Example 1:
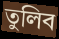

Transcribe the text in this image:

তুলিব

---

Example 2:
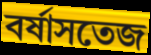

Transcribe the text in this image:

বর্ষাসতেজ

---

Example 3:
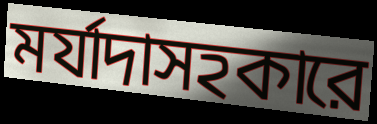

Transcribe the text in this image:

মর্যাদাসহকারে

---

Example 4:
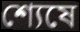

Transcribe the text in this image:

শ্যেষে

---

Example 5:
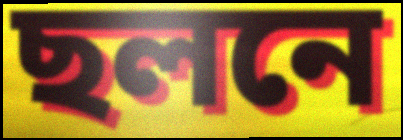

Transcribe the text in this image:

ছলনে